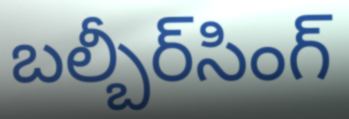
బల్బీర్‌సింగ్